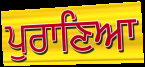
ਪੁਰਾਣਿਆ